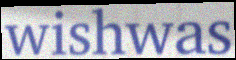
wishwas